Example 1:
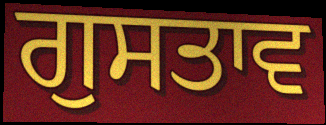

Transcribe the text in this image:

ਗੁਸਤਾਵ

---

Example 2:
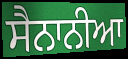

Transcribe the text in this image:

ਸੈਨਾਨੀਆ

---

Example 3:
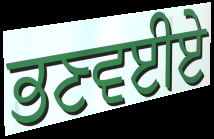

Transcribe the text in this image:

ਭਣਵਈਏ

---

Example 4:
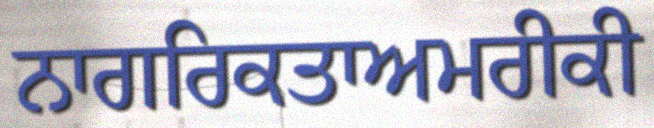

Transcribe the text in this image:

ਨਾਗਰਿਕਤਾਅਮਰੀਕੀ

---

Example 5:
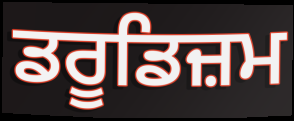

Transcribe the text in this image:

ਡਰੂਡਿਜ਼ਮ